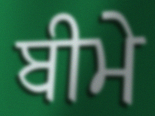
ਬੀਮੇ